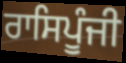
ਰਾਸਿਪੂੰਜੀ